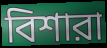
বিশারা